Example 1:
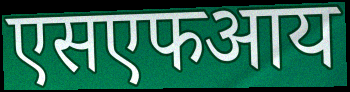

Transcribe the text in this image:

एसएफआय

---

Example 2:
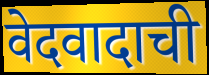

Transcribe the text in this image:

वेदवादाची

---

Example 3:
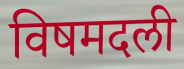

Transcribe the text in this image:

विषमदली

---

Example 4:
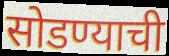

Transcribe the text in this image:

सोडण्याची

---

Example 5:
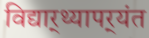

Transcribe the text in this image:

विद्यार्थ्यापर्यंत